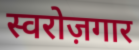
स्वरोज़गार